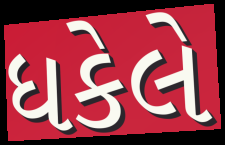
ધકેલે